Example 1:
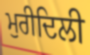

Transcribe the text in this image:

ਮੁਰੀਦਿਲੀ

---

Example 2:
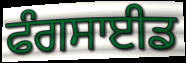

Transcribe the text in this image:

ਫੰਗਸਾਈਡ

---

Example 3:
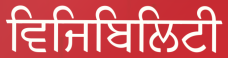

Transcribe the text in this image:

ਵਿਜਿਬਿਲਿਟੀ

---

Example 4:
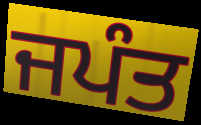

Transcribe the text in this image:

ਜਪੰਤ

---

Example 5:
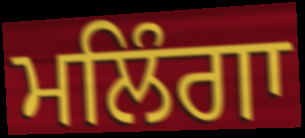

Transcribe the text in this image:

ਮਲਿੰਗਾ